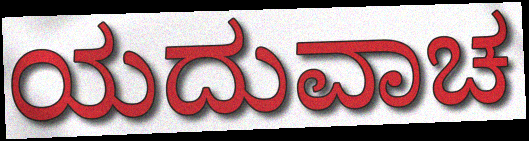
ಯದುವಾಚ